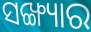
ସଙ୍ଖ୍ୟାର